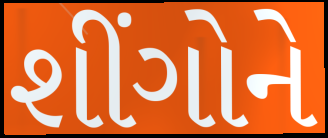
શીંગોને